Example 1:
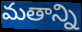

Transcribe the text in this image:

మతాన్ని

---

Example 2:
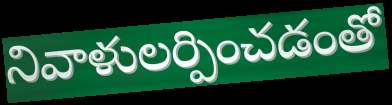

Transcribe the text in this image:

నివాళులర్పించడంతో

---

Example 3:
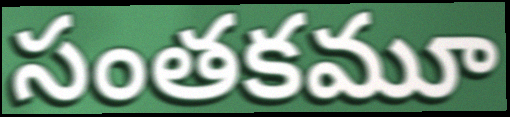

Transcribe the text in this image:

సంతకమూ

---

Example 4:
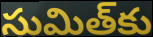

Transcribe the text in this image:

సుమిత్‌కు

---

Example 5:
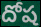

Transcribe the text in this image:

దోష